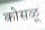
कोसळू